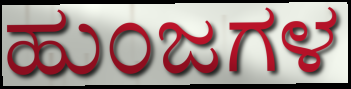
ಹುಂಜಗಳ